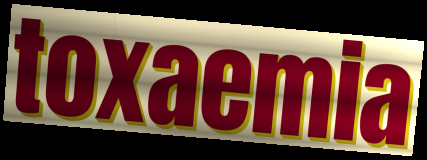
toxaemia